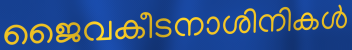
ജൈവകീടനാശിനികൾ